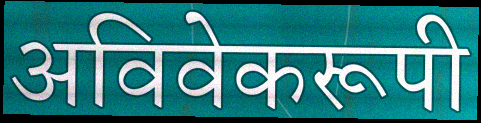
अविवेकरूपी